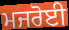
ਮਜਰੋਈ